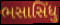
ભસાસિંધુ